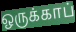
ஒருக்காப்